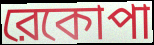
রেকোপা